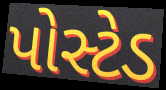
પોસ્ટેડ